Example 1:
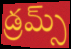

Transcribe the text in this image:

డ్రమ్స్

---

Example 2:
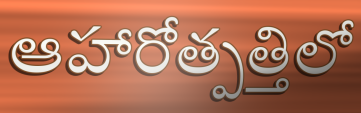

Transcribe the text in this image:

ఆహారోత్పత్తిలో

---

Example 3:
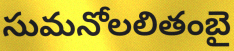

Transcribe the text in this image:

సుమనోలలితంబై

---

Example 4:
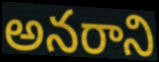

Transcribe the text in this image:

అనరాని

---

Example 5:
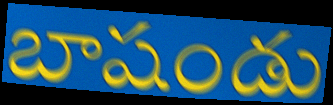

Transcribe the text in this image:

బాషండు